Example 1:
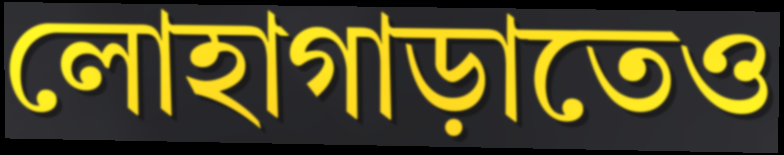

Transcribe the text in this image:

লোহাগাড়াতেও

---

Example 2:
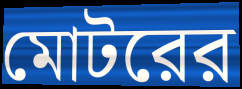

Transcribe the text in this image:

মোটরের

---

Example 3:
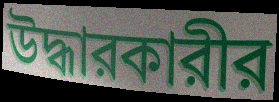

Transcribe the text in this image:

উদ্ধারকারীর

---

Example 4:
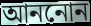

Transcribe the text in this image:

আননোন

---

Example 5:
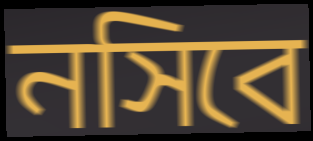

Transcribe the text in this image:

নসিবে